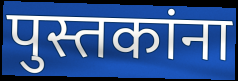
पुस्तकांना